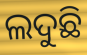
ଲଦୁଛି